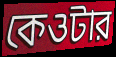
কেওটার